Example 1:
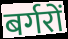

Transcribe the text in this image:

बर्गरों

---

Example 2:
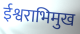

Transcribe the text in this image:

ईश्वराभिमुख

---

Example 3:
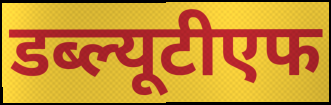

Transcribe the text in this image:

डब्ल्यूटीएफ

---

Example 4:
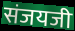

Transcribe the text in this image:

संजयजी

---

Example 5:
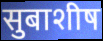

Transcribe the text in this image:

सुबाशीष